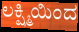
ಲಕ್ಷ್ಮಿಯಿಂದ